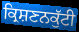
ਕ੍ਰਿਸ਼ਣਨਕੁੱਟੀ